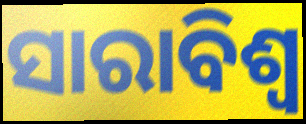
ସାରାବିଶ୍ବ